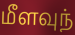
மீளவுந்